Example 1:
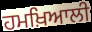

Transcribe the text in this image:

ਹਮਖ਼ਿਆਲੀ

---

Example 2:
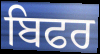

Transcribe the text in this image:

ਬਿਫਰ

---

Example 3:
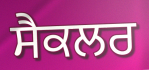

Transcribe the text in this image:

ਸੈਕਲਰ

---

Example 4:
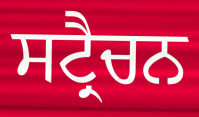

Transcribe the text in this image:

ਸਟ੍ਰੈਚਨ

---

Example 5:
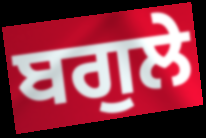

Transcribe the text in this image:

ਬਗੁਲੇ